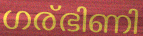
ഗര്ഭിണി